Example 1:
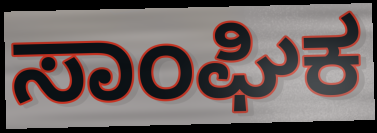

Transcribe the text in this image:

ಸಾಂಘಿಕ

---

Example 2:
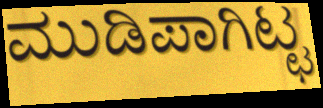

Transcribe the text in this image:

ಮುಡಿಪಾಗಿಟ್ಟ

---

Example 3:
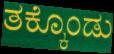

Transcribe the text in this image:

ತಕ್ಕೊಂಡು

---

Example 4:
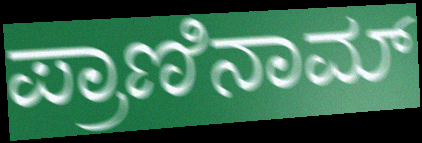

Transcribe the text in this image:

ಪ್ರಾಣಿನಾಮ್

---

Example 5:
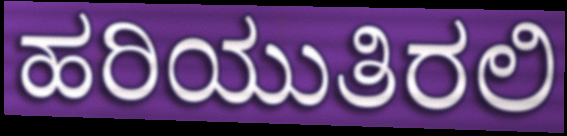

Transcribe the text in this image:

ಹರಿಯುತಿರಲಿ